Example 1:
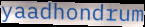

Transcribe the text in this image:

yaadhondrum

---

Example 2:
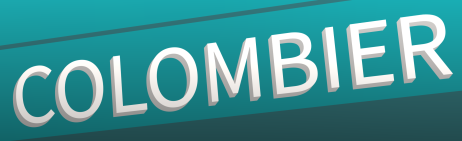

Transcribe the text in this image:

COLOMBIER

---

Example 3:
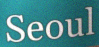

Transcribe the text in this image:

Seoul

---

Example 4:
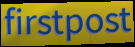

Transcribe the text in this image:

firstpost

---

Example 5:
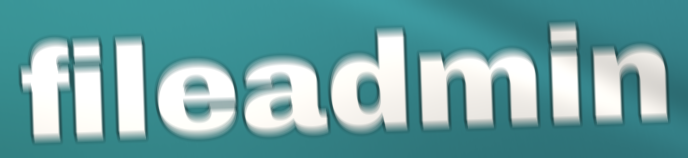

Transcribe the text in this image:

fileadmin